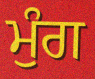
ਮੁੰਗ